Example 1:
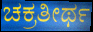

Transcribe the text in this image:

ಚಕ್ರತೀರ್ಥ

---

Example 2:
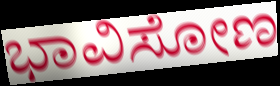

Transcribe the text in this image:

ಭಾವಿಸೋಣ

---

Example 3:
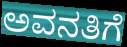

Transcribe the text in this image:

ಅವನತಿಗೆ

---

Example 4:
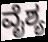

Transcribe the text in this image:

ವೈಶ್ಯ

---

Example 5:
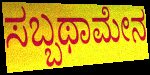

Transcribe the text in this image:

ಸಬ್ಬಥಾಮೇನ